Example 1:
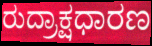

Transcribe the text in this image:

ರುದ್ರಾಕ್ಷಧಾರಣ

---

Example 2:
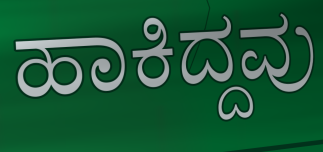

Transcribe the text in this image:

ಹಾಕಿದ್ದವು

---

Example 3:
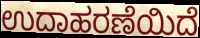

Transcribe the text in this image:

ಉದಾಹರಣೆಯಿದೆ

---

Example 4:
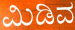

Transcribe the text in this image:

ಮಿಡಿವ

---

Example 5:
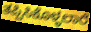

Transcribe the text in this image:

ತಪ್ಪಿಸಿಕೊಳ್ಳಲಾರೆ